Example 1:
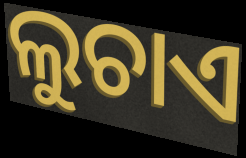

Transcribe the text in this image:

ଲୁଚାଏ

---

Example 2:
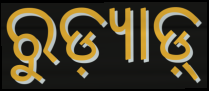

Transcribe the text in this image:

ରୁଡ଼୍ୟାଡ଼୍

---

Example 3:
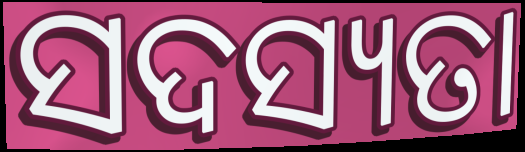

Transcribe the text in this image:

ସଦସ୍ଯତା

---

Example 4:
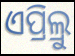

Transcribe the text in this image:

ଏପ୍ରିଲ୍ରୁ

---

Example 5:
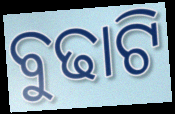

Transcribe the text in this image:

ବୁଢାଟି